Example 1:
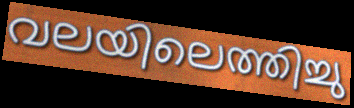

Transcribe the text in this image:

വലയിലെത്തിച്ചു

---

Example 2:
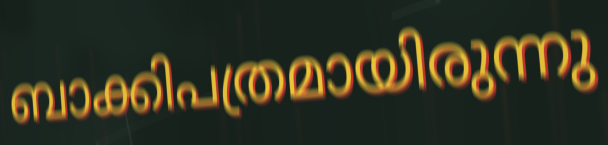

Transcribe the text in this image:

ബാക്കിപത്രമായിരുന്നു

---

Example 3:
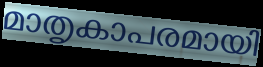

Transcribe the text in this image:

മാതൃകാപരമായി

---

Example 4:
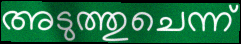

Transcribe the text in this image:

അടുത്തുചെന്ന്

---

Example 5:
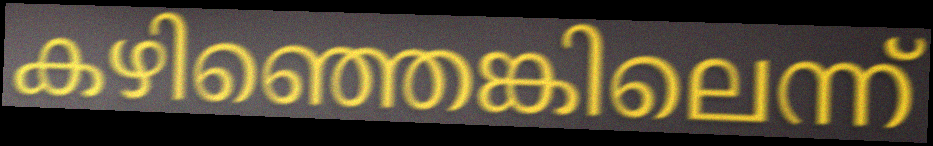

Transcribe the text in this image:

കഴിഞ്ഞെങ്കിലെന്ന്